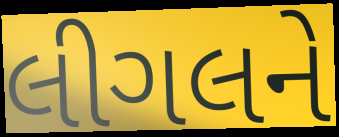
લીગલને